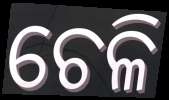
ଚେଳି